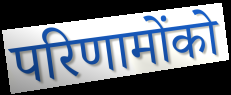
परिणामोंको